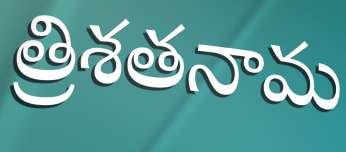
త్రిశతనామ